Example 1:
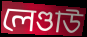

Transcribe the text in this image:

লেণ্ডাউ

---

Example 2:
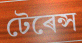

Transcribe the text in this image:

টেৰেন্স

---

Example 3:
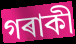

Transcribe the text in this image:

গৰাকী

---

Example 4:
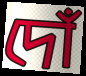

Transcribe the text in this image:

দোঁ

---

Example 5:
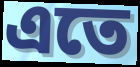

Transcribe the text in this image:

এতে